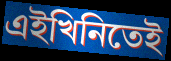
এইখিনিতেই